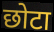
छोटा